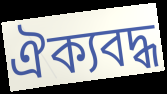
ঐক্যবদ্ধ